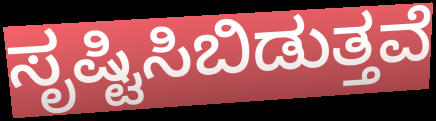
ಸೃಷ್ಟಿಸಿಬಿಡುತ್ತವೆ